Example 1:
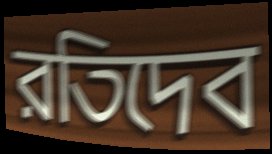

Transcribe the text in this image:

রতিদেব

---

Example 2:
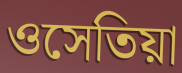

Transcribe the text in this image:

ওসেতিয়া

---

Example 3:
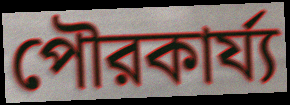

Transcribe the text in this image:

পৌরকার্য্য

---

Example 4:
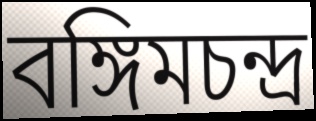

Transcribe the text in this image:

বঙ্গিমচন্দ্র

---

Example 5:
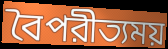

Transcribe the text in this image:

বৈপরীত্যময়